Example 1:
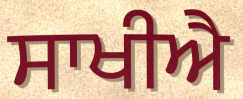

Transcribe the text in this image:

ਸਾਖੀਐ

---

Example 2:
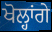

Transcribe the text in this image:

ਖੋਲ੍ਹਾਂਗੇ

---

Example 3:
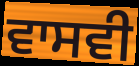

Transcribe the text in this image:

ਵਾਸਵੀ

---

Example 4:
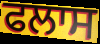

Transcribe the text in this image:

ਫਲਾਸ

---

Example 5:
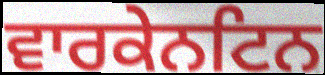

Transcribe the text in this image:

ਵਾਰਕੇਨਟਿਨ